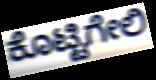
ಕೊಟ್ಟಿಗೇಲಿ